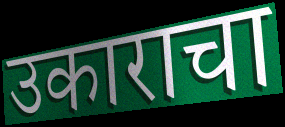
उकाराचा